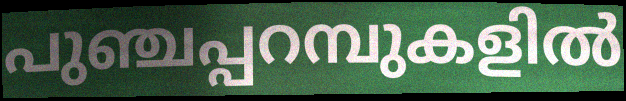
പുഞ്ചപ്പറമ്പുകളിൽ